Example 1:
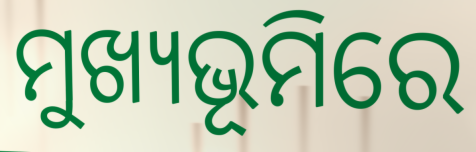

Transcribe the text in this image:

ମୁଖ୍ୟଭୂମିରେ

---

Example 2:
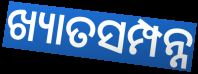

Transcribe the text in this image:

ଖ୍ୟାତସମ୍ପନ୍ନ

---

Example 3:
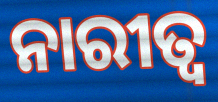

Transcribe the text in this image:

ନାରୀତ୍ୱ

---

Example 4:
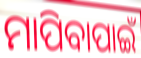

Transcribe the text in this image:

ମାପିବାପାଇଁ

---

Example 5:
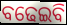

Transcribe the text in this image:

ବଢେଇବି